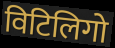
विटिलिगो